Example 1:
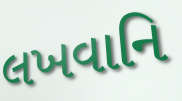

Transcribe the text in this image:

લખવાનિ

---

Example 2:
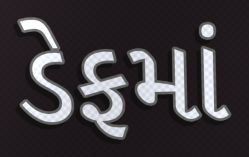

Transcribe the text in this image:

ડેફમાં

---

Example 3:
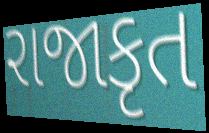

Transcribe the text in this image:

રાજાકૃત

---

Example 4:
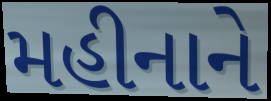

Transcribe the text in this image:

મહીનાને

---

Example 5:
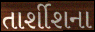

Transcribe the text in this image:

તાર્શીશના